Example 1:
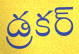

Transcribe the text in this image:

డ్రకర్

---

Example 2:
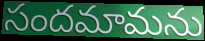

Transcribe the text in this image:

సందమామను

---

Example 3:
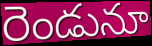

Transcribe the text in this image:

రెండునూ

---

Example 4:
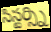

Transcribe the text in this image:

సిస్టర్స్ని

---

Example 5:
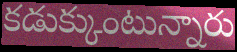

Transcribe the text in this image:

కడుక్కుంటున్నారు